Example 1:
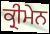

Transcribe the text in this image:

ਕ੍ਰੀਮੇਨ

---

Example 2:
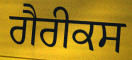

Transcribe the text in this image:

ਗੈਰੀਕਸ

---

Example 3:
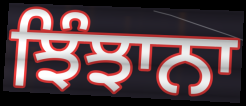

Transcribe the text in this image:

ਝਿੰਝਾਨਾ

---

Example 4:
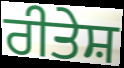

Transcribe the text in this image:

ਰੀਤੇਸ਼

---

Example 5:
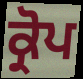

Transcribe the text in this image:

ਕ੍ਰੋਪ